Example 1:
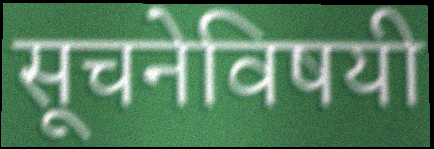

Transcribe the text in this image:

सूचनेविषयी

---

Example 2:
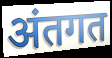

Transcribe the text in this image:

अंतगत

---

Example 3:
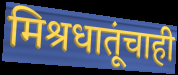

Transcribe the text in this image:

मिश्रधातूंचाही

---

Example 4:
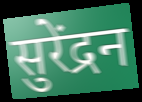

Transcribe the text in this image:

सुरेंद्रन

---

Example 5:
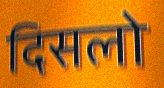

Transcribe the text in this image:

दिसलो